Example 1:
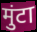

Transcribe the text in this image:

मुंटा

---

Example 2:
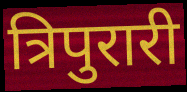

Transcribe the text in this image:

त्रिपुरारी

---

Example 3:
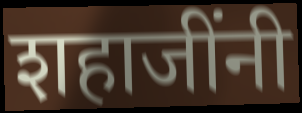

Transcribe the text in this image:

शहाजींनी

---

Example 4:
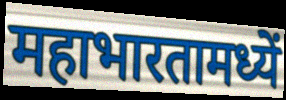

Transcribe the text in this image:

महाभारतामध्यें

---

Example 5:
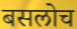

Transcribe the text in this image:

बसलोच